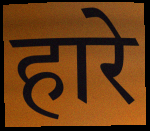
हारे